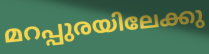
മറപ്പുരയിലേക്കു